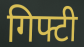
गिफ्टी